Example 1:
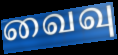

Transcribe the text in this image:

வைவு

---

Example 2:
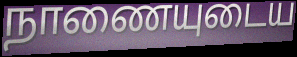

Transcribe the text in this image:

நாணையுடைய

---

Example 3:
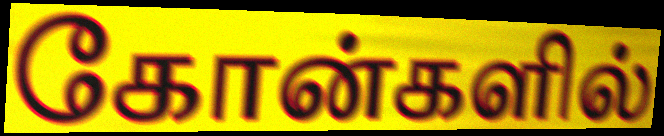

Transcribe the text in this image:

கோன்களில்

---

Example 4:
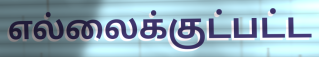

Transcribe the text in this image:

எல்லைக்குட்பட்ட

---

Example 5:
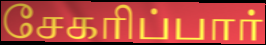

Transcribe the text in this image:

சேகரிப்பார்